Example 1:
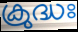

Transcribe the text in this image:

ക്രുദ്ധഃ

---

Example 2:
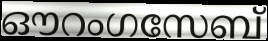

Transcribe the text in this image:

ഔറംഗസേബ്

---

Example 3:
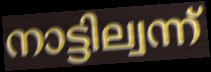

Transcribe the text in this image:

നാട്ടില്വന്ന്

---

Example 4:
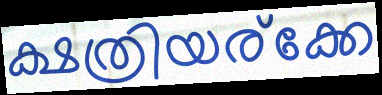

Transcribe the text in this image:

ക്ഷത്രിയര്ക്കേ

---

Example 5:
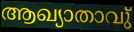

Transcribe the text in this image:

ആഖ്യാതാവു്